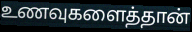
உணவுகளைத்தான்